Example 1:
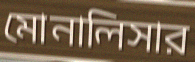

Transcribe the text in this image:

মোনালিসার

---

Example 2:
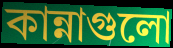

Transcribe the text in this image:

কান্নাগুলো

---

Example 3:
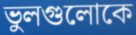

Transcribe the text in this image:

ভুলগুলোকে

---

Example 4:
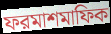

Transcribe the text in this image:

ফরমাশমাফিক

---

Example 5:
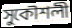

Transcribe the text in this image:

সুকৌশলী